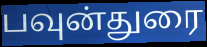
பவுன்துரை